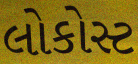
લોકોસ્ટ